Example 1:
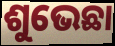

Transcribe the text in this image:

ଶୁଭେଛା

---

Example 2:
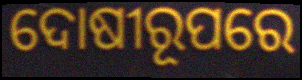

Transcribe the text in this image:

ଦୋଷୀରୂପରେ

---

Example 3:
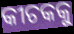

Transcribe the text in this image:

କୀଚକକୁ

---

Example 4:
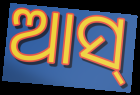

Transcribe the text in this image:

ଆସ୍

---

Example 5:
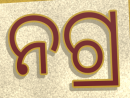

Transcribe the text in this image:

ନଗ୍ର